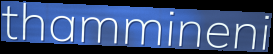
thammineni